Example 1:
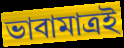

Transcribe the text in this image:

ভাবামাত্রই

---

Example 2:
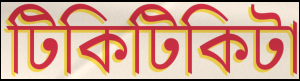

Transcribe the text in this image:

টিকিটিকিটা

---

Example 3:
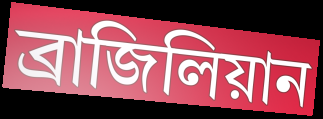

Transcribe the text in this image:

ব্রাজিলিয়ান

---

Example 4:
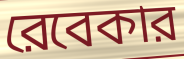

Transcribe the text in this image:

রেবেকার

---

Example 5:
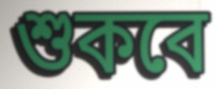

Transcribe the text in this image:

শুকবে